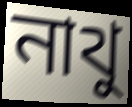
নাথু